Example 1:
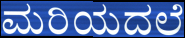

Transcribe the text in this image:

ಮರಿಯದಲೆ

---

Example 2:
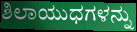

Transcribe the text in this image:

ಶಿಲಾಯುಧಗಳನ್ನು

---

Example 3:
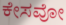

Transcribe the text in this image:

ಕೇಸವೋ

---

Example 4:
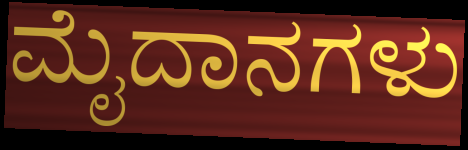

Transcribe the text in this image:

ಮೈದಾನಗಳು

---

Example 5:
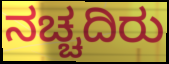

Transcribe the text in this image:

ನಚ್ಚದಿರು